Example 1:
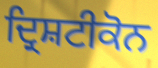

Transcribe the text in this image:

ਦ੍ਰਿਸ਼ਟੀਕੋਨ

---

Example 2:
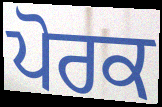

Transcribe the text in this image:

ਪੋਰਕ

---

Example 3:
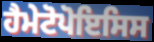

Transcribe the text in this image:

ਹੈਮੇਟੋਪੋਇਸਿਸ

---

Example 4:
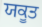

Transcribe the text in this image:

ਯਕੂਤ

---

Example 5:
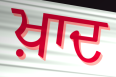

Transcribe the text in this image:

ਖ਼ਾਦ